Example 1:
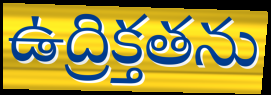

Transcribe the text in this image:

ఉద్రిక్తతను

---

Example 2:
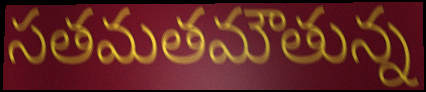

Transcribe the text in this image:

సతమతమౌతున్న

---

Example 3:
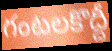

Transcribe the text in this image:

గంటలకొద్దీ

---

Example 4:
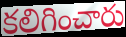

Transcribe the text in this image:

కలిగించారు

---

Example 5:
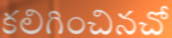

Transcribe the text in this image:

కలిగించినచో